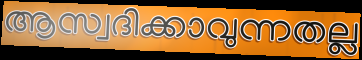
ആസ്വദിക്കാവുന്നതല്ല